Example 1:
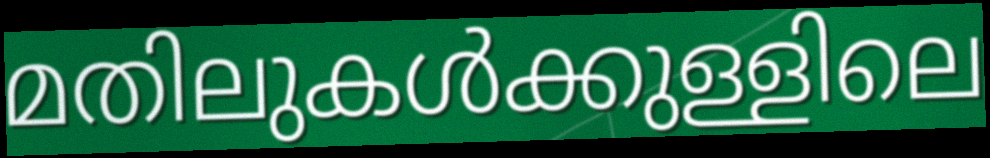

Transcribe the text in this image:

മതിലുകൾക്കുള്ളിലെ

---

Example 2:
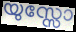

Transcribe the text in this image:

യുസ്സോ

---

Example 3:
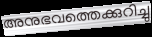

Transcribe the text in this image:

അനുഭവത്തെക്കുറിച്ചു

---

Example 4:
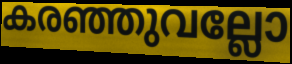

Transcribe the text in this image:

കരഞ്ഞുവല്ലോ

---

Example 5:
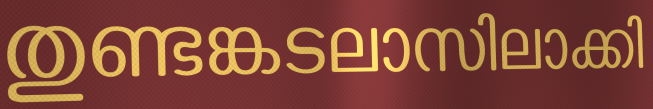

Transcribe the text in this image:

തുണ്ടങ്കടലാസിലാക്കി